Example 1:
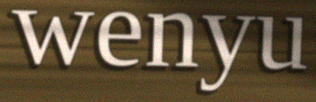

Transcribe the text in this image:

wenyu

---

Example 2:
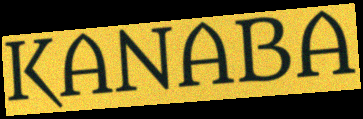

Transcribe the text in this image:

KANABA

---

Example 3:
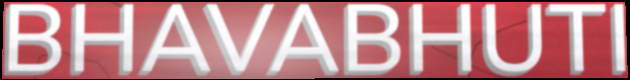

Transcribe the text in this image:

BHAVABHUTI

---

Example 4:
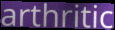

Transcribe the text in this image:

arthritic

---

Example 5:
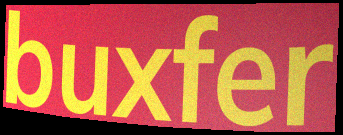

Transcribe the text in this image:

buxfer